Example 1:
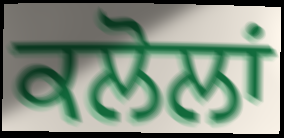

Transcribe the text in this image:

ਕਲੋਲਾਂ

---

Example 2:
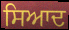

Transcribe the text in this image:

ਸਿਆਦ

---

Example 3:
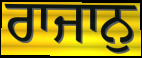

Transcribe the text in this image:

ਰਾਜਾਨੁ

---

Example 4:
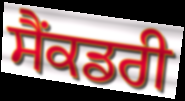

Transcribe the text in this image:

ਸੈਂਕਡਰੀ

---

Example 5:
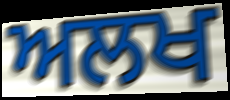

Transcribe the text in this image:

ਅਲਖ